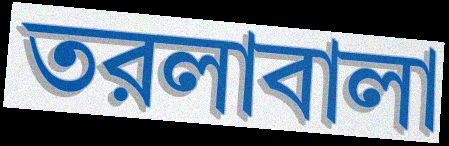
তরলাবালা